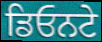
ਡਿਓਨਟੇ